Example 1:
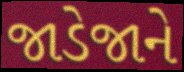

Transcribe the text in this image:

જાડેજાને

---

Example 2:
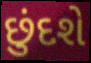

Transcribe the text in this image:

છુંદશે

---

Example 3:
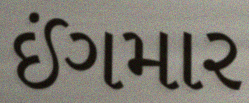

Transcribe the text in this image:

ઈંગમાર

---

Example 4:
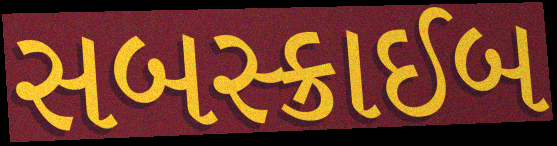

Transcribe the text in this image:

સબસ્ક્રાઈબ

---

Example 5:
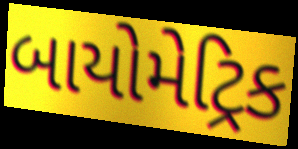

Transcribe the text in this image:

બાયોમેટ્રિક